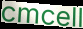
cmcell